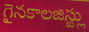
గైనకాలజిస్ట్లు